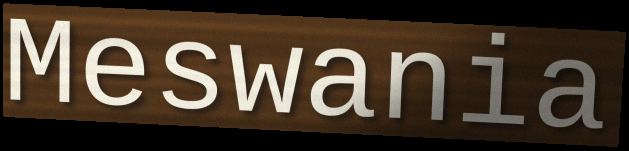
Meswania